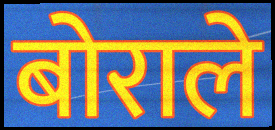
बोराले